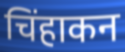
चिंहाकन